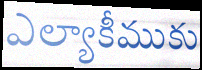
ఎల్యాకీముకు